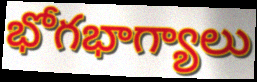
భోగభాగ్యాలు